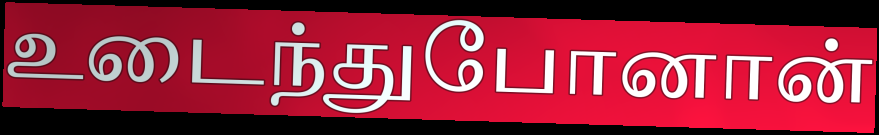
உடைந்துபோனான்